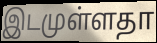
இடமுள்ளதா